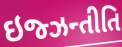
ઇજ્ઝન્તીતિ